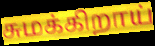
சுமக்கிறாய்